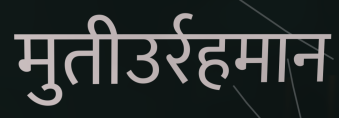
मुतीउर्रहमान